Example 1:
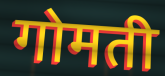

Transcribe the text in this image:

गोमती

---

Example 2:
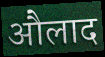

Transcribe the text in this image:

औलाद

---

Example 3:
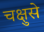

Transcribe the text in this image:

चक्षुसे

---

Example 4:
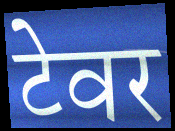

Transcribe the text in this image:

टेवर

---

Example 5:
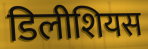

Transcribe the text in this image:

डिलीशियस